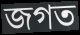
জগত